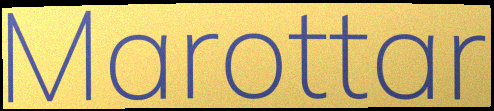
Marottar